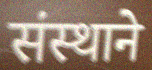
संस्थाने